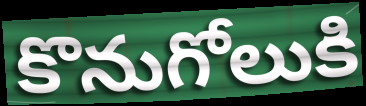
కొనుగోలుకి